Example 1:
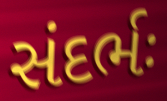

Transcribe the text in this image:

સંદર્ભઃ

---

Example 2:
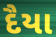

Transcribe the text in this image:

દૈયા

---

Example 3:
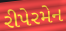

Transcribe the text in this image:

રીપેરમેન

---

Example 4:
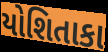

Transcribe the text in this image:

યોશિતાકા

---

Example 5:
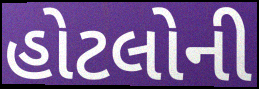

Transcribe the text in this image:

હોટલોની